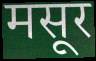
मसूर